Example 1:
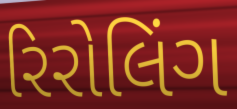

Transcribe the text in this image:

રિરોલિંગ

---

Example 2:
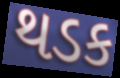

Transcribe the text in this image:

થડક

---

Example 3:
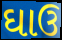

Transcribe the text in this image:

ઘાઉ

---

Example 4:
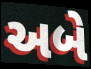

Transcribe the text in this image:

અબે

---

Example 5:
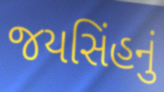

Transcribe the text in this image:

જયસિંહનું